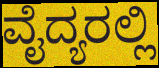
ವೈದ್ಯರಲ್ಲಿ